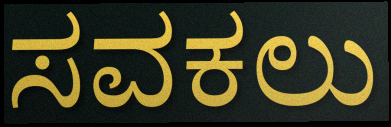
ಸವಕಲು